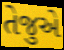
તેજુએ